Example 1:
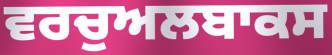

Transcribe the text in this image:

ਵਰਚੁਅਲਬਾਕਸ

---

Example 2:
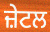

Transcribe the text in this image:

ਜ਼ੇਟਲ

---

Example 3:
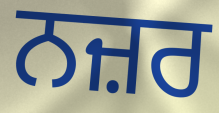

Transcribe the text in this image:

ਨਜ਼ਰ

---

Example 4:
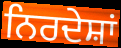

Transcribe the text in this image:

ਨਿਰਦੇਸ਼ਾਂ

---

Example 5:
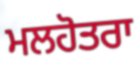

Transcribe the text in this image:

ਮਲਹੋਤਰਾ